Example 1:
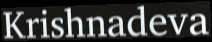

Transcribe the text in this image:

Krishnadeva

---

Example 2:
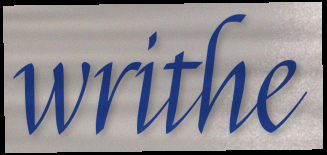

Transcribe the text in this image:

writhe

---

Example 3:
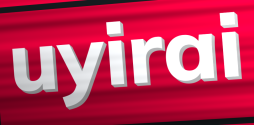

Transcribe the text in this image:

uyirai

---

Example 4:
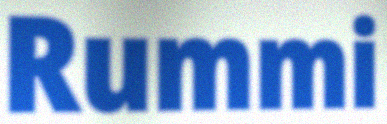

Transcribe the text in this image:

Rummi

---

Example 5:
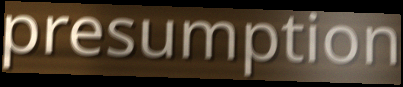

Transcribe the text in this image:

presumption